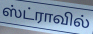
ஸ்ட்ராவில்